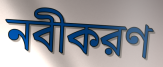
নবীকরণ